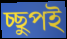
চ্ছুপই